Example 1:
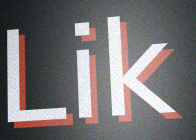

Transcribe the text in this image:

Lik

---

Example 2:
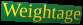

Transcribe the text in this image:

Weightage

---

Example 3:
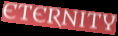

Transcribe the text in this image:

ETERNITY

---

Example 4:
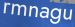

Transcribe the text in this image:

rmnagu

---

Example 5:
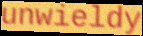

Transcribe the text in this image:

unwieldy